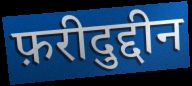
फ़रीदुद्दीन